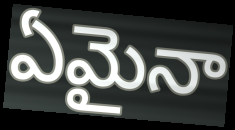
ఏమైనా